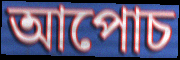
আপোচ